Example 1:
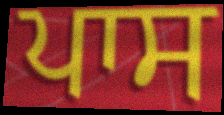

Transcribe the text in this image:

ਪਾਸ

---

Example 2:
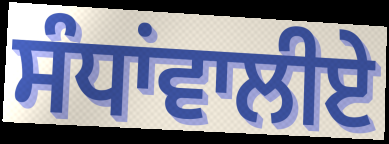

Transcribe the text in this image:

ਸੰਧਾਂਵਾਲੀਏ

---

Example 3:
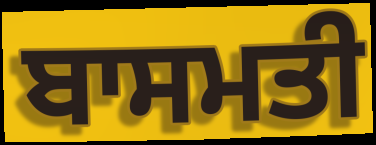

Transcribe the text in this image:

ਬਾਸਮਤੀ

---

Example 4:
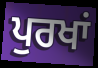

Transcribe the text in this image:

ਪੁਰਖਾਂ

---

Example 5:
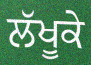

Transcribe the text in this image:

ਲੱਖੂਕੇ